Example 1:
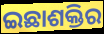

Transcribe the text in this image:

ଇଛାଶକ୍ତିର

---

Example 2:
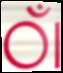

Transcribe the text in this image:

ଠାଁ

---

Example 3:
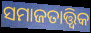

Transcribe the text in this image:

ସମାଜତାତ୍ତ୍ୱିକ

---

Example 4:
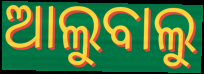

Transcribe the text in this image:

ଆଲୁବାଲୁ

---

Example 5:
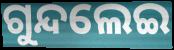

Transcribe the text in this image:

ଗୁନ୍ଦଲେଇ